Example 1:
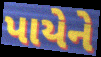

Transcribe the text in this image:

પાયેને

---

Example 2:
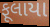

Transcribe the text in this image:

ફૂલાયા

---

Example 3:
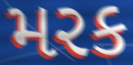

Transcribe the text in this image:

મરક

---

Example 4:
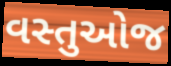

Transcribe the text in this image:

વસ્તુઓજ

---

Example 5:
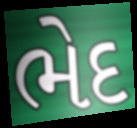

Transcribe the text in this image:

ભેદ